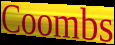
Coombs